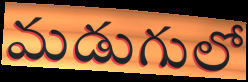
మడుగులో